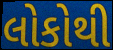
લોકોથી